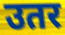
उतर